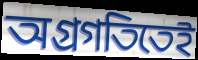
অগ্রগতিতেই